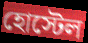
হোস্টেল